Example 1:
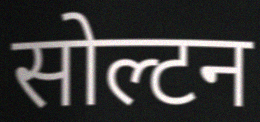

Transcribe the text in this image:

सोल्टन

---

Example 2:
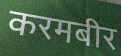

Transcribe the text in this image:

करमबीर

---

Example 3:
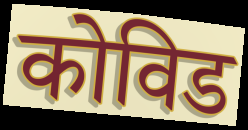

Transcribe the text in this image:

कोविड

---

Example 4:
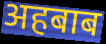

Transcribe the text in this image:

अहबाब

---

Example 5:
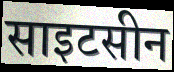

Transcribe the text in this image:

साइटसीन